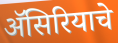
ॲसिरियाचे